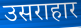
उसराहार